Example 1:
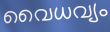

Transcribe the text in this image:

വൈധവ്യം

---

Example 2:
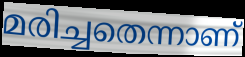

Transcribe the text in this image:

മരിച്ചതെന്നാണ്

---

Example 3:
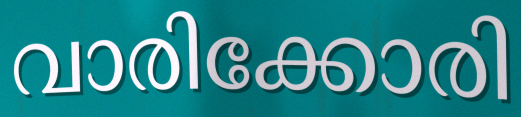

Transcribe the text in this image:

വാരിക്കോരി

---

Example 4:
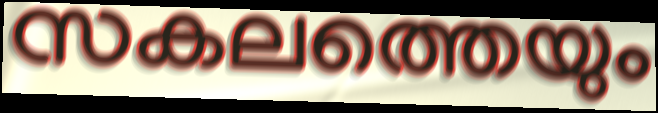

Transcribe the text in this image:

സകലത്തെയും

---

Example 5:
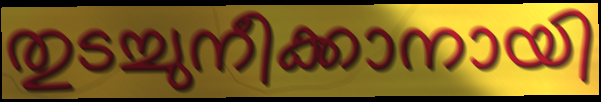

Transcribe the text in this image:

തുടച്ചുനീക്കാനായി